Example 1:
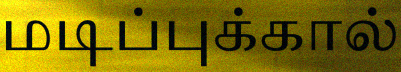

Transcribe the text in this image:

மடிப்புக்கால்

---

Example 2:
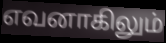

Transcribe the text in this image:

எவனாகிலும்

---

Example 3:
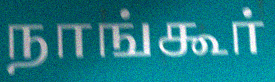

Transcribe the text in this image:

நாங்கூர்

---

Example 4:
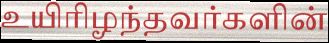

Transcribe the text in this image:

உயிரிழந்தவர்களின்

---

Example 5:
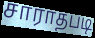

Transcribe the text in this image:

சாராதபடி